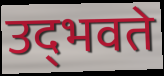
उद्भवते